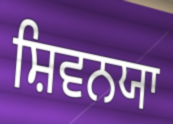
ਸ਼ਿਵਨਯਾ